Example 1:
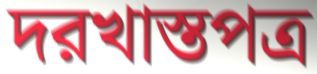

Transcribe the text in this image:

দরখাস্তপত্র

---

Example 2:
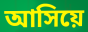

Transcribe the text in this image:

আসিয়ে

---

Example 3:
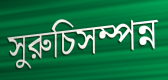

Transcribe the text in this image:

সুরুচিসম্পন্ন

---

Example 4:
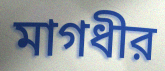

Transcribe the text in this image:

মাগধীর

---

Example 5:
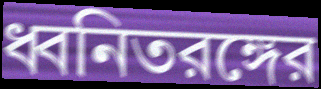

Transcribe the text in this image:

ধ্বনিতরঙ্গের